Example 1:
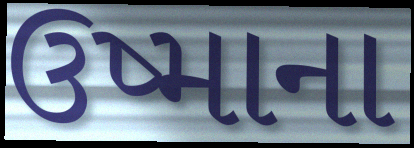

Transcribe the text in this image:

ઉષ્માના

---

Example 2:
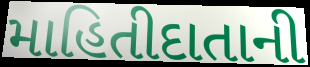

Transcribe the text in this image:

માહિતીદાતાની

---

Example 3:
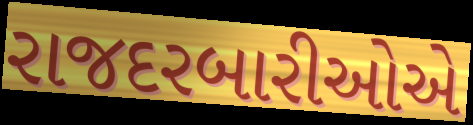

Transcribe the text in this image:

રાજદરબારીઓએ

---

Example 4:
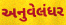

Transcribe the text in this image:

અનુવેલંધર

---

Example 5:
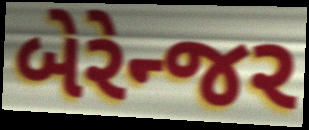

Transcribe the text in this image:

બેરેન્જર